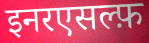
इनरएसल्फ़